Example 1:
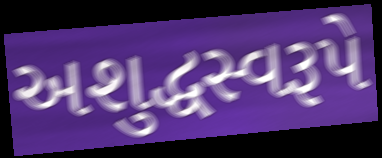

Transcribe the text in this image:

અશુદ્ધસ્વરૂપે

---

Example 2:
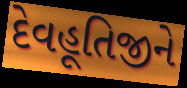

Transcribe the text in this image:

દેવહૂતિજીને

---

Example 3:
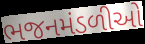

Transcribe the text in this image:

ભજનમંડળીઓ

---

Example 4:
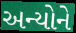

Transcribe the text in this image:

અન્યોને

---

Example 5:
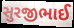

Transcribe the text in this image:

સુરજીભાઈ